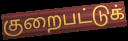
குறைபட்டுக்